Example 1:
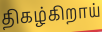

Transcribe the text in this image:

திகழ்கிறாய்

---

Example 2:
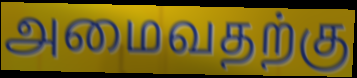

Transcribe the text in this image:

அமைவதற்கு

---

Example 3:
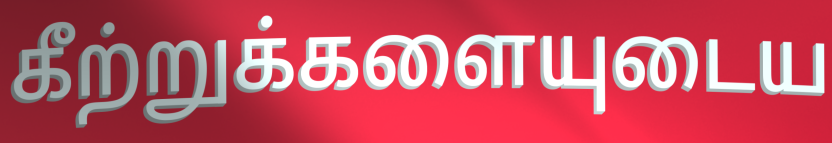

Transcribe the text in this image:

கீற்றுக்களையுடைய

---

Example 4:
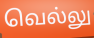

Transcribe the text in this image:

வெல்லு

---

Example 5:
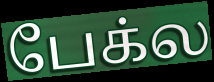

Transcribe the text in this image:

பேக்ல